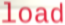
load